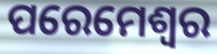
ପରେମେଶ୍ଵର